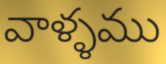
వాళ్ళము